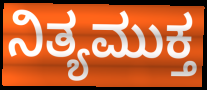
ನಿತ್ಯಮುಕ್ತ